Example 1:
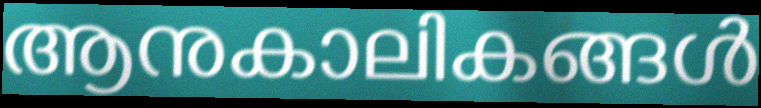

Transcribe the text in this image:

ആനുകാലികങ്ങൾ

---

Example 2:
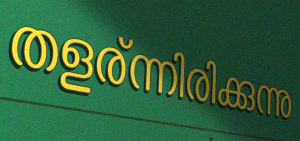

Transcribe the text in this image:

തളര്ന്നിരിക്കുന്നു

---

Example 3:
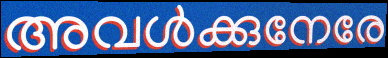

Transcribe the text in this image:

അവൾക്കുനേരേ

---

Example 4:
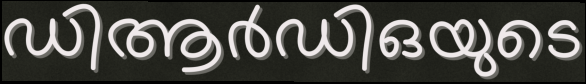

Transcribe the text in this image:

ഡിആർഡിഒയുടെ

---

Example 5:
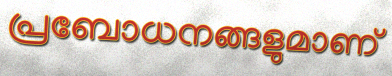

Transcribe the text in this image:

പ്രബോധനങ്ങളുമാണ്